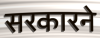
सरकारने